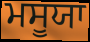
ਮਸੂਯਾ